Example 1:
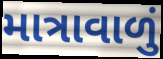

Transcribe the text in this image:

માત્રાવાળું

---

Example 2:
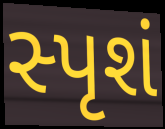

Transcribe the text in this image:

સ્પૃશં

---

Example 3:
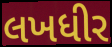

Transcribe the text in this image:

લખધીર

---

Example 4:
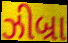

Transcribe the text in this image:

ઝીબ્રા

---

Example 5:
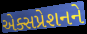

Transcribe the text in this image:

એક્સપ્રેશનને